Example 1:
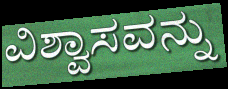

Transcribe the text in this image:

ವಿಶ್ವಾಸವನ್ನು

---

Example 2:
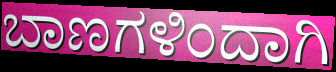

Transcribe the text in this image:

ಬಾಣಗಳಿಂದಾಗಿ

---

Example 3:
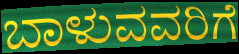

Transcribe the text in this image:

ಬಾಳುವವರಿಗೆ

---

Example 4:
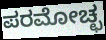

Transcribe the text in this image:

ಪರಮೋಚ್ಛ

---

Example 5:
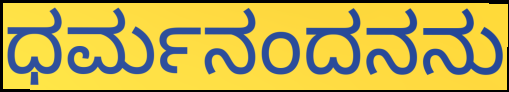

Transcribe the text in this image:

ಧರ್ಮನಂದನನು